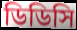
ডিডিসি